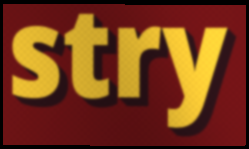
stry